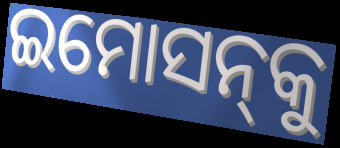
ଇମୋସନ୍‌କୁ